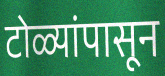
टोळ्यांपासून